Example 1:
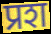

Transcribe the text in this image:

प्रश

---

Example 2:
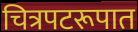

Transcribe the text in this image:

चित्रपटरूपात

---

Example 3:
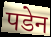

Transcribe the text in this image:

पडेन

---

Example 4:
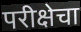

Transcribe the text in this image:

परीक्षेचा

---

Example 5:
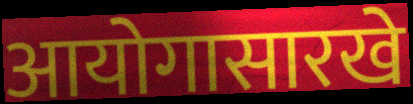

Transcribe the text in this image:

आयोगासारखे